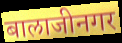
बालाजीनगर